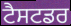
ਟੈਸਟਡਰ